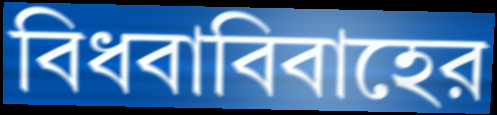
বিধবাবিবাহের